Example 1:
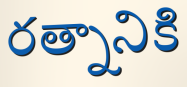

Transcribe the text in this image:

రత్నానికి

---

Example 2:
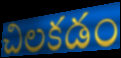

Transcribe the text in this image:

చిలకడం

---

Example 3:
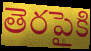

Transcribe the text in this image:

తెరపైకి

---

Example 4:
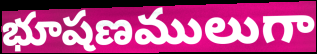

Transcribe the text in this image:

భూషణములుగా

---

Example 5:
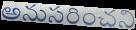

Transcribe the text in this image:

అనుసరించని